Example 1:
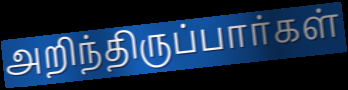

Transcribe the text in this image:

அறிந்திருப்பார்கள்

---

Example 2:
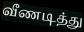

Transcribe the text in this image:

வீணடித்து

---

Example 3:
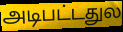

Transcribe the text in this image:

அடிபட்டதுல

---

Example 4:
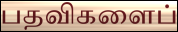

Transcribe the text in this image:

பதவிகளைப்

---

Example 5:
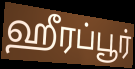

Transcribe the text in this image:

ஹீரப்பூர்